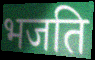
भजति